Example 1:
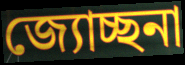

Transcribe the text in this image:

জ্যোচ্ছনা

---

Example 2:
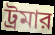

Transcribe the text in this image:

ট্রমার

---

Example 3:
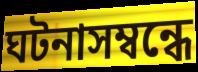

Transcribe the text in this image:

ঘটনাসম্বন্ধে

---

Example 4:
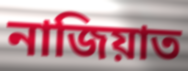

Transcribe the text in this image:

নাজিয়াত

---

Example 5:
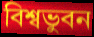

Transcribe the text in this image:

বিশ্বভুবন